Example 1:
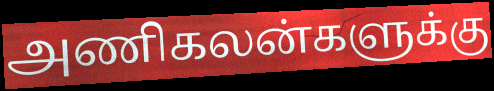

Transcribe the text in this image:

அணிகலன்களுக்கு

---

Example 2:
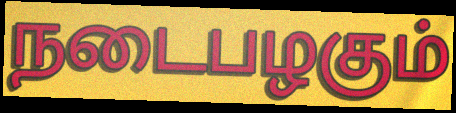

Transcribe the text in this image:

நடைபழகும்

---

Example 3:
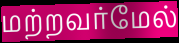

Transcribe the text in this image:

மற்றவர்மேல்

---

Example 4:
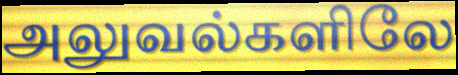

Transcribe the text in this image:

அலுவல்களிலே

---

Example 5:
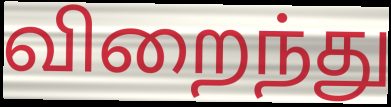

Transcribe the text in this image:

விறைந்து